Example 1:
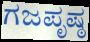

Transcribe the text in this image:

ಗಜಪೃಷ್ಠ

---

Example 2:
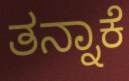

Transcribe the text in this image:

ತನ್ನಾಕೆ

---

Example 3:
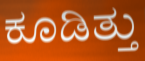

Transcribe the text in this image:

ಕೂಡಿತ್ತು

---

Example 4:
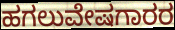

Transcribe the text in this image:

ಹಗಲುವೇಷಗಾರರ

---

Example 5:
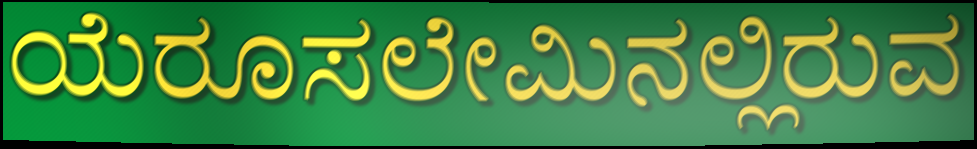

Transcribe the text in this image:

ಯೆರೂಸಲೇಮಿನಲ್ಲಿರುವ